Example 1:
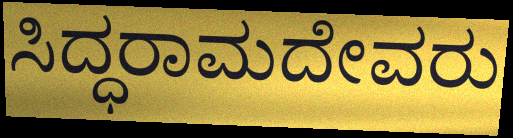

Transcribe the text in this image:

ಸಿದ್ಧರಾಮದೇವರು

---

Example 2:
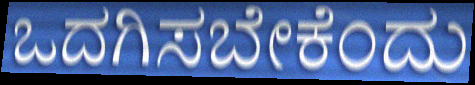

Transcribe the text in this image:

ಒದಗಿಸಬೇಕೆಂದು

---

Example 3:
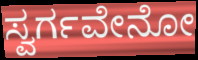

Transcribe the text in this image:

ಸ್ವರ್ಗವೇನೋ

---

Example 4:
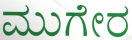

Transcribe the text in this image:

ಮುಗೇರ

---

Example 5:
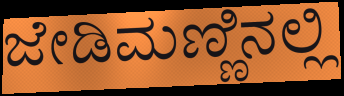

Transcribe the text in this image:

ಜೇಡಿಮಣ್ಣಿನಲ್ಲಿ